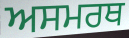
ਅਸਮਰਥ